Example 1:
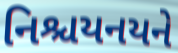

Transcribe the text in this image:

નિશ્ચયનયને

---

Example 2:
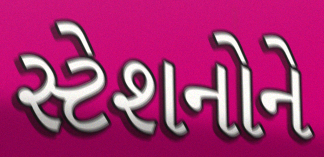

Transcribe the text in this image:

સ્ટેશનોને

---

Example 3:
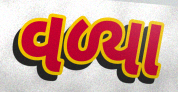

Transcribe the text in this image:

વળ્યા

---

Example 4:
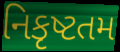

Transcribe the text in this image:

નિકૃષ્ટતમ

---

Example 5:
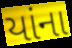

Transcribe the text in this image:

યાંના